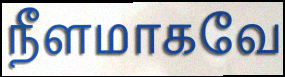
நீளமாகவே